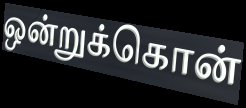
ஒன்றுக்கொன்